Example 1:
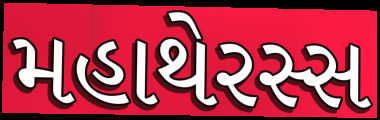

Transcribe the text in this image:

મહાથેરસ્સ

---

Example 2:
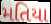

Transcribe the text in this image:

મતિયા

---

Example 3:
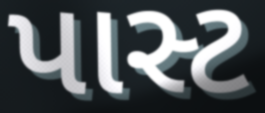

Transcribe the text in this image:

પાસ્ટ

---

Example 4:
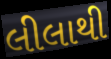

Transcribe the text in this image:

લીલાથી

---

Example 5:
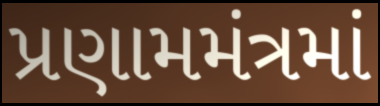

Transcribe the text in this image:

પ્રણામમંત્રમાં